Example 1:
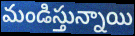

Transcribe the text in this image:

మండిస్తున్నాయి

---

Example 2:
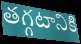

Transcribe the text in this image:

తగ్గటానికి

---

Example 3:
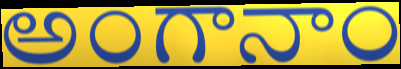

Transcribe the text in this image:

అంగానాం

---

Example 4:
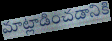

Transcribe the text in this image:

మాట్లాడించడానికి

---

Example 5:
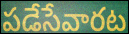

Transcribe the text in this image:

పడేసేవారట